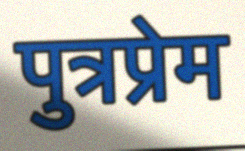
पुत्रप्रेम